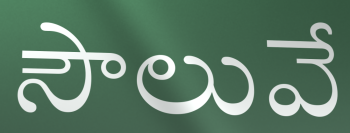
సౌలువే